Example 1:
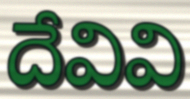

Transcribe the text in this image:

దేవివి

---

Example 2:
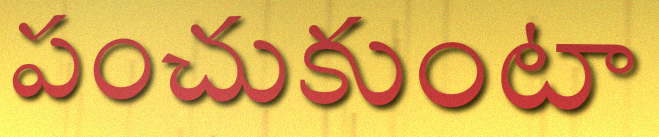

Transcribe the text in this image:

పంచుకుంటా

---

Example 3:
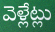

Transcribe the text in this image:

వెళ్లేట్లు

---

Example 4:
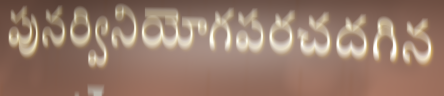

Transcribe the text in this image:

పునర్వినియోగపరచదగిన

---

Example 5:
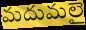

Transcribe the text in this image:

మదుమలై